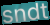
sndt